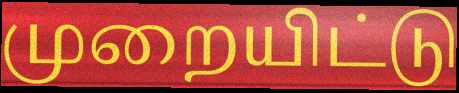
முறையிட்டு